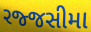
રજ્જસીમા